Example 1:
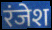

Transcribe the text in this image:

रंजेश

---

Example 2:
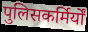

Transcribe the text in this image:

पुलिसकर्मिर्यों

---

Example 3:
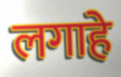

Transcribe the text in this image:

लगाहे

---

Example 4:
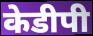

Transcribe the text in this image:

केडीपी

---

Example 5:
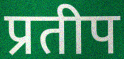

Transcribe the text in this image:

प्रतीप